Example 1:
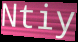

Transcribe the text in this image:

Ntiy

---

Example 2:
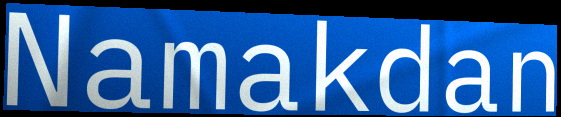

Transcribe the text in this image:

Namakdan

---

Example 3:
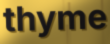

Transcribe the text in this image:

thyme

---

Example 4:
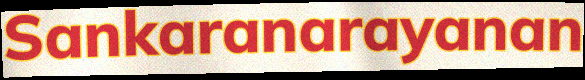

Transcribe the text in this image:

Sankaranarayanan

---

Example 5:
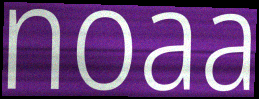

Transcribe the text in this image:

noaa